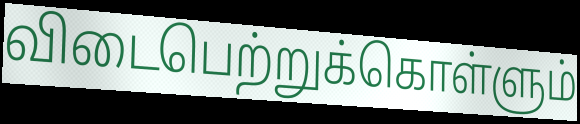
விடைபெற்றுக்கொள்ளும்